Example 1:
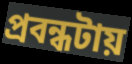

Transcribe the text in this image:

প্রবন্ধটায়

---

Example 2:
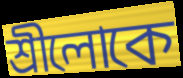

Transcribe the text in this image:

শ্রীলোকে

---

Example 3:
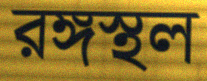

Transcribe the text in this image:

রঙ্গস্থল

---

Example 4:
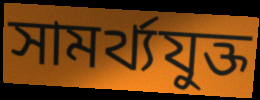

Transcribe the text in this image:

সামর্থ্যযুক্ত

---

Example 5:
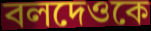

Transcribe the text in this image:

বলদেওকে